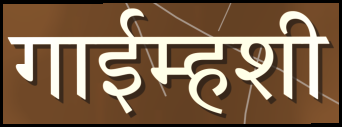
गाईम्हशी